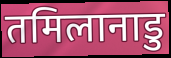
तमिलानाडु